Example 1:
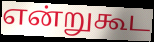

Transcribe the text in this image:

என்றுகூட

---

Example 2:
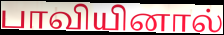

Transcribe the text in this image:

பாவியினால்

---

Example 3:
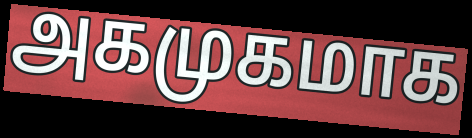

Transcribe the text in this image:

அகமுகமாக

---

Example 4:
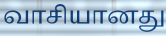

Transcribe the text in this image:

வாசியானது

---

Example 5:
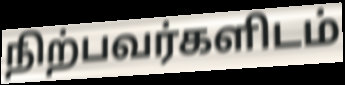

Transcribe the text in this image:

நிற்பவர்களிடம்